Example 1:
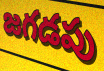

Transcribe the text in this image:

జగడపు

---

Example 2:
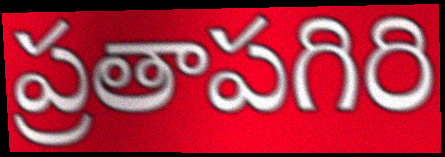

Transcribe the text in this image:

ప్రతాపగిరి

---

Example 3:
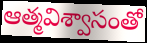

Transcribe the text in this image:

ఆత్మవిశ్వాసంతో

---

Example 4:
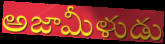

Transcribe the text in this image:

అజామీళుడు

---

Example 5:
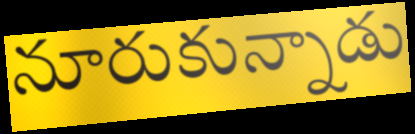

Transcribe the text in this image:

నూరుకున్నాడు